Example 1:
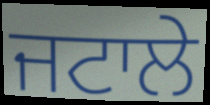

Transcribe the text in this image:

ਜਟਾਲੇ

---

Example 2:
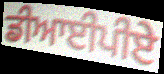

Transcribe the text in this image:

ਡੀਆਈਪੀਏ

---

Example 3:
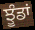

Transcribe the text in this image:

ਝੂੰਡਾਂ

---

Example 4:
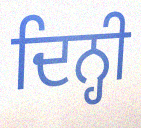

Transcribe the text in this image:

ਦਿਨ੍ਹੀ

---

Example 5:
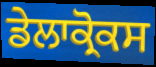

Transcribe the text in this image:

ਡੇਲਾਕ੍ਰੋਕਸ